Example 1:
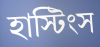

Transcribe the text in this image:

হাস্টিংস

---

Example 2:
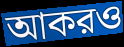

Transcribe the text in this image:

আকরও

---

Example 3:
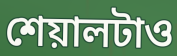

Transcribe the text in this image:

শেয়ালটাও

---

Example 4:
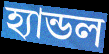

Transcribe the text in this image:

হ্যান্ডল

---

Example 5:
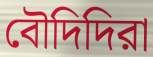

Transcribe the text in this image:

বৌদিদিরা